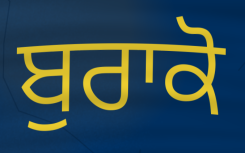
ਬੁਰਾਕੋ